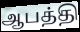
ஆபத்தி